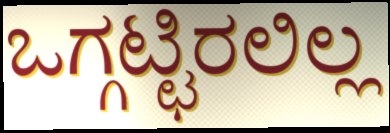
ಒಗ್ಗಟ್ಟಿರಲಿಲ್ಲ